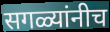
सगळ्यांनीच